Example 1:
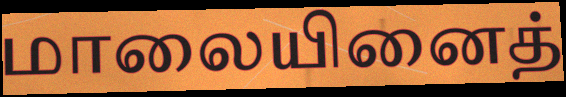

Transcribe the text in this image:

மாலையினைத்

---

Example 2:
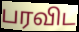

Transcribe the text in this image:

பரவிட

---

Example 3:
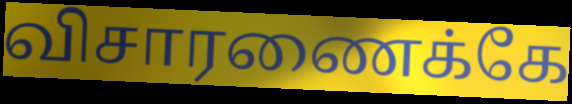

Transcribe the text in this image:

விசாரணைக்கே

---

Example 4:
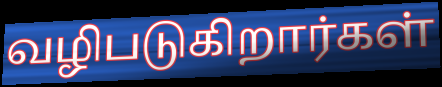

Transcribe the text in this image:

வழிபடுகிறார்கள்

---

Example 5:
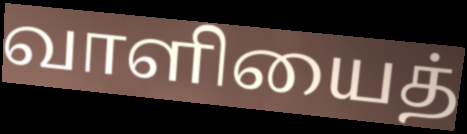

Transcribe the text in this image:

வாளியைத்